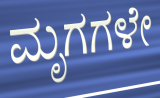
ಮೃಗಗಳೇ